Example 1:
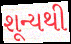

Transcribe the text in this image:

શૂન્યથી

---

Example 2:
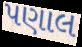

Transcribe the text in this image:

પણાલ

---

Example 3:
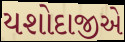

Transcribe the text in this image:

યશોદાજીએ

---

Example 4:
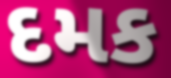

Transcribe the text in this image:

દમક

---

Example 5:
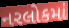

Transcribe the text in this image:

નરલોકમાં